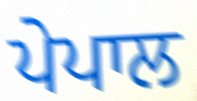
ਪੇਪਾਲ